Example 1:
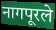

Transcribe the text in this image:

नागपूरले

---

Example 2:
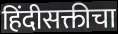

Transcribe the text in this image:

हिंदीसक्तीचा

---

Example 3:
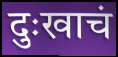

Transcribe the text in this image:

दुःखाचं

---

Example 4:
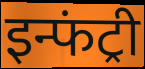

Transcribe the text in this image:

इन्फंट्री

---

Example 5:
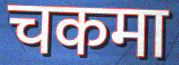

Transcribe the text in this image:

चकमा